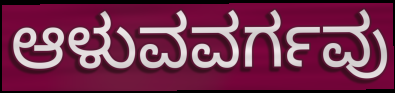
ಆಳುವವರ್ಗವು